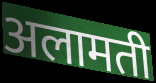
अलामती